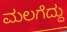
ಮಲಗೆದ್ದು